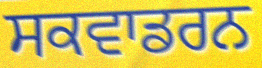
ਸਕਵਾਡਰਨ